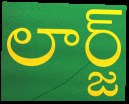
లార్జ్